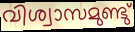
വിശ്വാസമുണ്ടു്